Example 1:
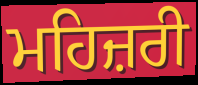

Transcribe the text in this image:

ਮਹਿਜ਼ਰੀ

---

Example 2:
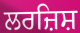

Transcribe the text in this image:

ਲਰਜ਼ਿਸ਼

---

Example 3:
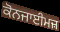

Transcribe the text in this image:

ਕੋਨਜਾਈਮਜ਼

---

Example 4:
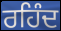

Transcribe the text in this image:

ਰਹਿੰਦ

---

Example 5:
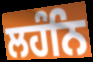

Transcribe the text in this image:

ਲਹੰਨਿ